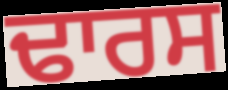
ਢਾਰਸ